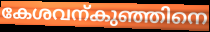
കേശവന്കുഞ്ഞിനെ